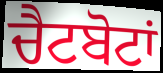
ਚੈਟਬੋਟਾਂ